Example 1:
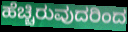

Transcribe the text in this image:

ಹೆಚ್ಚಿರುವುದರಿಂದ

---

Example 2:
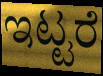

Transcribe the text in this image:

ಇಟ್ಟರೆ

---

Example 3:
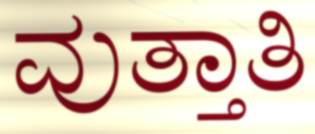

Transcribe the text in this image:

ವುತ್ತಾತಿ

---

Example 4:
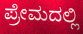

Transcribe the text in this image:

ಪ್ರೇಮದಲ್ಲಿ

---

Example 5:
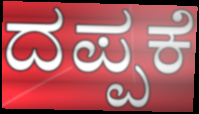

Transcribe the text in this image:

ದಪ್ಪಕೆ